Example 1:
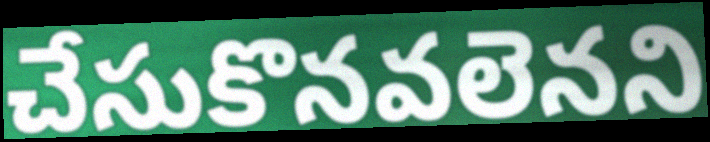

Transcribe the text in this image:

చేసుకొనవలెనని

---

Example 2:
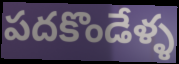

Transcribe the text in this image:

పదకొండేళ్ళ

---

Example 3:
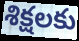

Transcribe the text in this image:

శిక్షలకు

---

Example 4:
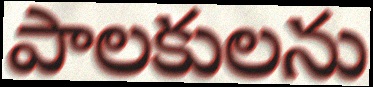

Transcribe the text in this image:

పాలకులను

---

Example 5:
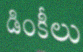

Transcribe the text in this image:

డింకీలు